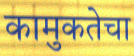
कामुकतेचा